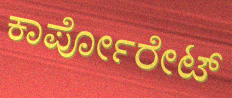
ಕಾರ್ಪೋರೇಟ್